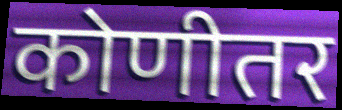
कोणीतर